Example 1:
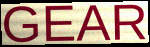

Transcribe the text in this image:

GEAR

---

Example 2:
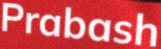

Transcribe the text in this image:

Prabash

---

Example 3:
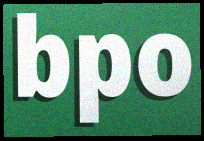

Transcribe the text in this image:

bpo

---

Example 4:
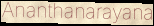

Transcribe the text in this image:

Ananthanarayana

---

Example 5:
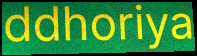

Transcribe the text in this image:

ddhoriya